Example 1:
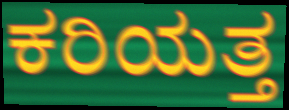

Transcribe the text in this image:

ಕರಿಯತ್ತ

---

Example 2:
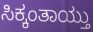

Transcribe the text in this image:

ಸಿಕ್ಕಂತಾಯ್ತು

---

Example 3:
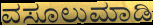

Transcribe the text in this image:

ವಸೂಲುಮಾಡಿ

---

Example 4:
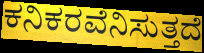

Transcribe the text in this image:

ಕನಿಕರವೆನಿಸುತ್ತದೆ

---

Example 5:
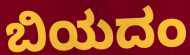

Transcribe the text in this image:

ಬಿಯದಂ